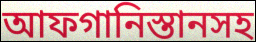
আফগানিস্তানসহ